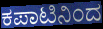
ಕಪಾಟಿನಿಂದ